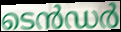
ടെൻഡർ